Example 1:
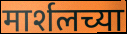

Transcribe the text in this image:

मार्शलच्या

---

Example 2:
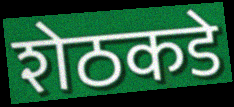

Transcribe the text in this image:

शेठकडे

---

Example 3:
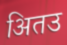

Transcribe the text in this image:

अितउ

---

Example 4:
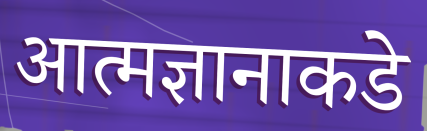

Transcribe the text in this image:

आत्मज्ञानाकडे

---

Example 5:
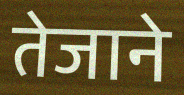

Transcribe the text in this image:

तेजाने